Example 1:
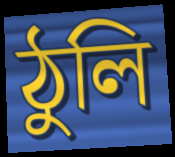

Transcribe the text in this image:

ঠুলি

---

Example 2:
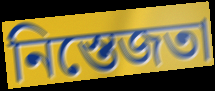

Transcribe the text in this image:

নিস্তেজতা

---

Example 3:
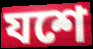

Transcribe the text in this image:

যশে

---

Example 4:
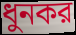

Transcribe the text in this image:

ধুনকর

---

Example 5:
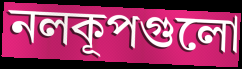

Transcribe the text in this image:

নলকূপগুলো